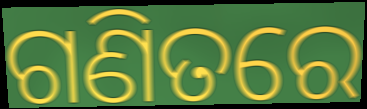
ଗଣିତରେ